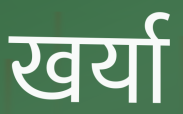
खर्या